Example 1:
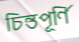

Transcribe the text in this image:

চিন্তপূৰ্ণি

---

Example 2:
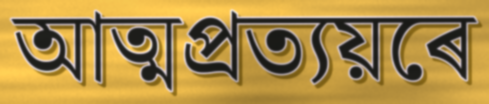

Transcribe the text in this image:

আত্মপ্ৰত্যয়ৰে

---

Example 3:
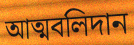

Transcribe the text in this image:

আত্মবলিদান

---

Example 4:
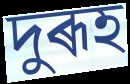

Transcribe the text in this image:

দুৰূহ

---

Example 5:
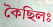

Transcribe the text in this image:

কৈছিলঃ